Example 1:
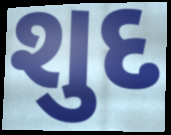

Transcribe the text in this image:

શુદ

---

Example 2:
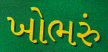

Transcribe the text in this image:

ખોભરું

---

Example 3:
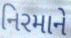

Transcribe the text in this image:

નિરમાને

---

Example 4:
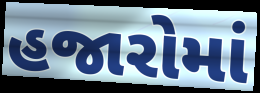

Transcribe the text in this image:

હજારોમાં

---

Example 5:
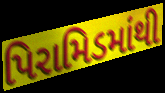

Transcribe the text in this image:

પિરામિડમાંથી